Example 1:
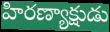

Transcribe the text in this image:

హిరణ్యాక్షుడు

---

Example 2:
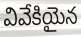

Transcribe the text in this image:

వివేకియైన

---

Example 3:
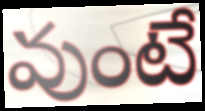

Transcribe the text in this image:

వుంటే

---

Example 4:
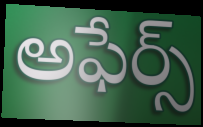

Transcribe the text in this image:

అఫేర్స్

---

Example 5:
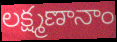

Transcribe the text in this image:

లక్ష్మణానాం